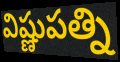
విష్ణుపత్ని